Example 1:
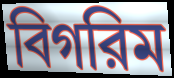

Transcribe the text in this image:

বিগরিম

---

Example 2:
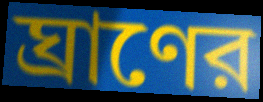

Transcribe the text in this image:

ঘ্রাণের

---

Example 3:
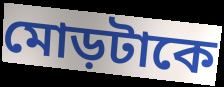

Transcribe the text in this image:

মোড়টাকে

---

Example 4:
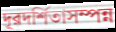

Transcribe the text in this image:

দূরদর্শিতাসম্পন্ন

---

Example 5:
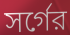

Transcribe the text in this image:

সর্গের